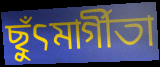
ছুঁৎমার্গীতা